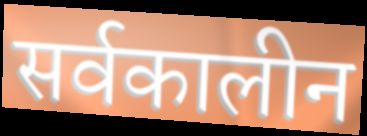
सर्वकालीन